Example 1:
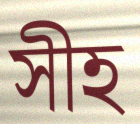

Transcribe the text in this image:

সীহ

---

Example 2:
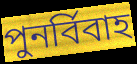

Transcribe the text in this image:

পুনৰ্বিবাহ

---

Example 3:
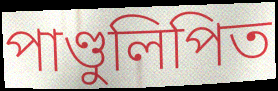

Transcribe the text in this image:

পাণ্ডুলিপিত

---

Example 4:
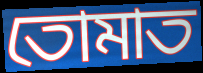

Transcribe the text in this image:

তোমাত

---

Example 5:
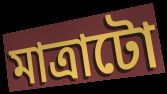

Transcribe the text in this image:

মাত্ৰাটো